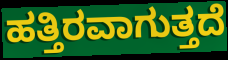
ಹತ್ತಿರವಾಗುತ್ತದೆ